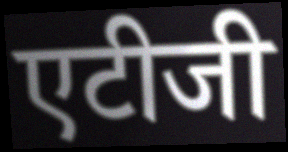
एटीजी